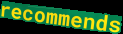
recommends